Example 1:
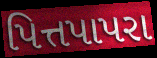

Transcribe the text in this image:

પિત્તપાપરા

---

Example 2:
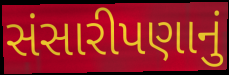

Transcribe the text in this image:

સંસારીપણાનું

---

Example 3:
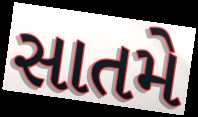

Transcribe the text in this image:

સાતમે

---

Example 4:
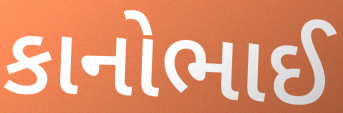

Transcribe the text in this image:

કાનોભાઈ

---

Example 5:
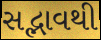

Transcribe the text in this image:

સદ્ભાવથી